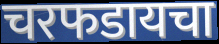
चरफडायचा